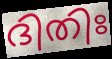
ദിതിഃ